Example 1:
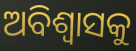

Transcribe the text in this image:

ଅବିଶ୍ୱାସକୁ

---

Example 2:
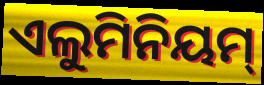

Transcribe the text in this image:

ଏଲୁମିନିୟମ୍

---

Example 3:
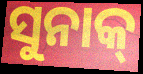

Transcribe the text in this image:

ସୁନାକ୍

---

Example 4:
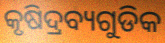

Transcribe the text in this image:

କୃଷିଦ୍ରବ୍ୟଗୁଡିକ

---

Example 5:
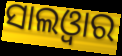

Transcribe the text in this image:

ସାଲଓ୍ଵାର